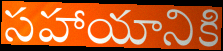
సహాయానికి